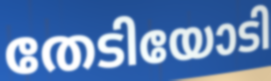
തേടിയോടി